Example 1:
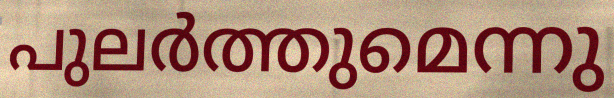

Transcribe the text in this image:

പുലർത്തുമെന്നു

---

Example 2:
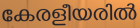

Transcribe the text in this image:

കേരളീയരിൽ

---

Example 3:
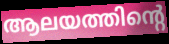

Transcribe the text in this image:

ആലയത്തിന്റെ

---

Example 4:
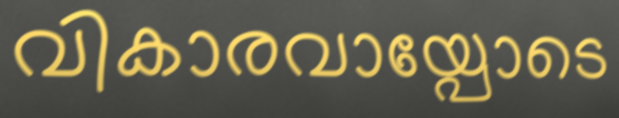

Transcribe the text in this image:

വികാരവായ്പോടെ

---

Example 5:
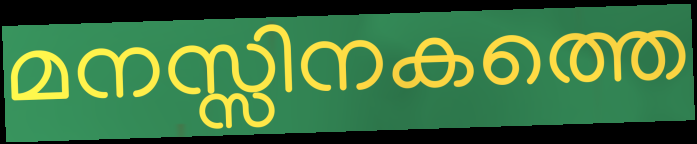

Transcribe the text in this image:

മനസ്സിനകത്തെ